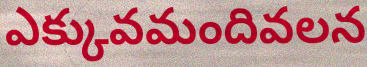
ఎక్కువమందివలన